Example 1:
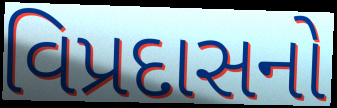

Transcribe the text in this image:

વિપ્રદાસનો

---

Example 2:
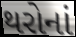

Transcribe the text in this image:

થરોનાં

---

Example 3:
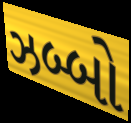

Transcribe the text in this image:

ઝબ્બો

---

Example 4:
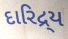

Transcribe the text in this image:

દારિદ્ર્ય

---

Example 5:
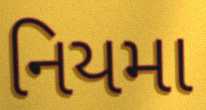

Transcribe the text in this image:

નિયમા